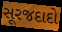
સૂરજદાદો